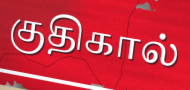
குதிகால்